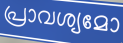
പ്രാവശ്യമോ